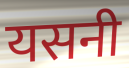
यसनी